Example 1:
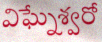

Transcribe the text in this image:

విఘ్నేశ్వరో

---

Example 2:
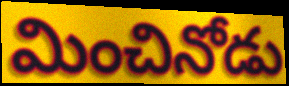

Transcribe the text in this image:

మించినోడు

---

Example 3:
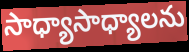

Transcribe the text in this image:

సాధ్యాసాధ్యాలను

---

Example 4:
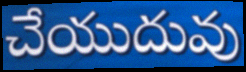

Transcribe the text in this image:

చేయుదువు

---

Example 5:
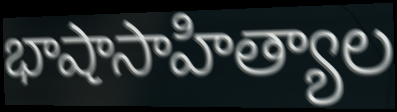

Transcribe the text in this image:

భాషాసాహిత్యాల